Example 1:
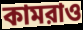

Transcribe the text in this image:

কামরাও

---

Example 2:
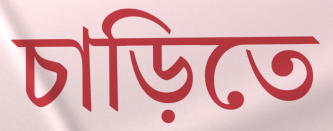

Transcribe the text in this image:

চাড়িতে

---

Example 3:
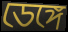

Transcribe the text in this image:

ডেঙ্গে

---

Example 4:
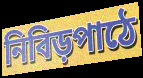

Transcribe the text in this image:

নিবিড়পাঠে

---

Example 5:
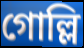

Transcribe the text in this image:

গোল্লি